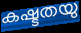
കഷ്ടതയു